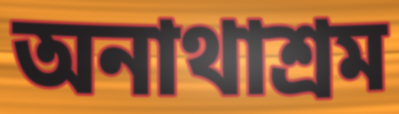
অনাথাশ্রম